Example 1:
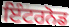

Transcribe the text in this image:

ਇੰਟਰਨੋਡ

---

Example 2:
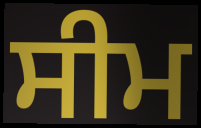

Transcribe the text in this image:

ਸੀਮ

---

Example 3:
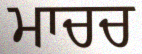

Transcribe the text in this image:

ਮਾਚਚ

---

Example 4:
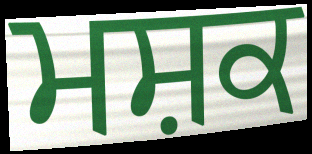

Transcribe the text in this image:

ਮਸ਼ਕ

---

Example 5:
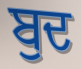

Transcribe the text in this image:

ਬੁਦ